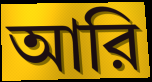
আরি